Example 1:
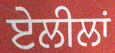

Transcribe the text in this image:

ਏਲੀਲਾਂ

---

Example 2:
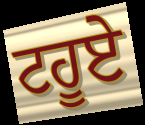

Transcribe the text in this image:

ਟਹੂਏ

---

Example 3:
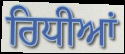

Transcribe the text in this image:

ਰਿਧੀਆਂ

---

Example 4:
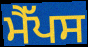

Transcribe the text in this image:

ਮੈੱਪਸ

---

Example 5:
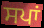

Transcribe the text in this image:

ਸਪਾਂ